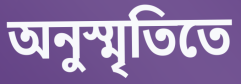
অনুস্মৃতিতে